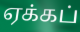
ஏக்கப்